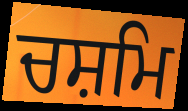
ਚਸ਼ਮਿ